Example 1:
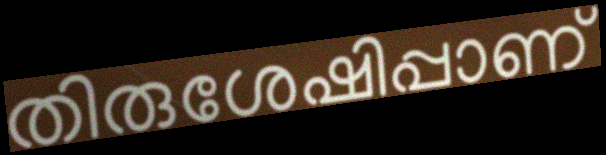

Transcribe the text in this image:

തിരുശേഷിപ്പാണ്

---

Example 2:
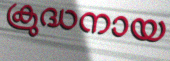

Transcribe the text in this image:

ക്രുദ്ധനായ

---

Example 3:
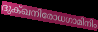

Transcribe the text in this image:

ദുക്ഖനിരോധഗാമിനിം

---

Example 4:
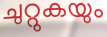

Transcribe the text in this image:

ചുറ്റുകയും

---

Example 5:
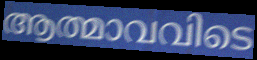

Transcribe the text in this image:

ആത്മാവവിടെ